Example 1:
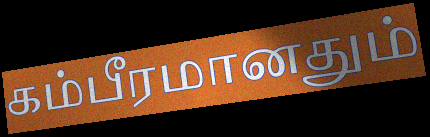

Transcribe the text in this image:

கம்பீரமானதும்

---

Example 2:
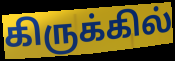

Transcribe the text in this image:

கிருக்கில்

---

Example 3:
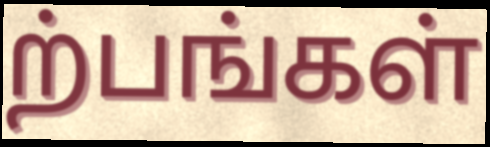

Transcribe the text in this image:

ற்பங்கள்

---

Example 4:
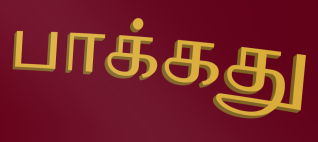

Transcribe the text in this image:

பாக்கது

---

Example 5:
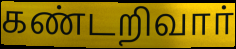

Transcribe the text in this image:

கண்டறிவார்